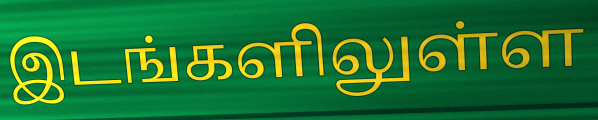
இடங்களிலுள்ள